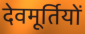
देवमूर्तियों